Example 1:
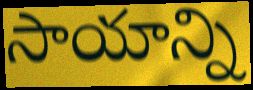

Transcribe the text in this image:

సాయాన్ని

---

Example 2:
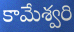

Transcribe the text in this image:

కామేశ్వరి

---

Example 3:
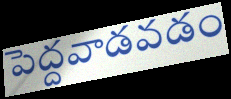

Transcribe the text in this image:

పెద్దవాడవడం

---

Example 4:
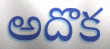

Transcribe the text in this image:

అదొక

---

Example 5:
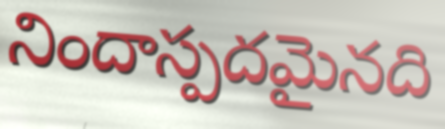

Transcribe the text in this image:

నిందాస్పదమైనది